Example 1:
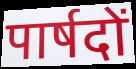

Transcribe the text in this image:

पार्षदों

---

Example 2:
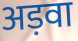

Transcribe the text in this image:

अड़वा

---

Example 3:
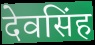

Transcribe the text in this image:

देवसिंह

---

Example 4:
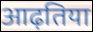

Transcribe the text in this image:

आढ़तिया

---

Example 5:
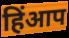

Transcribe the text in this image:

हिंआप